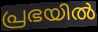
പ്രഭയിൽ